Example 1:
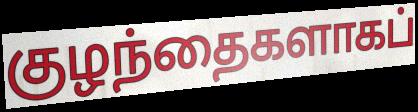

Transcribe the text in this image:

குழந்தைகளாகப்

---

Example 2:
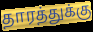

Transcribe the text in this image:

தாரத்துக்கு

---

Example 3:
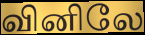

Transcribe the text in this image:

வினிலே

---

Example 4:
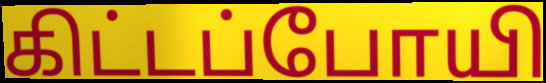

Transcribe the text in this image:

கிட்டப்போயி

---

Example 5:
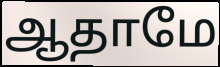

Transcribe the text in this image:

ஆதாமே